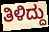
ತಿಳಿದ್ದು